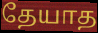
தேயாத